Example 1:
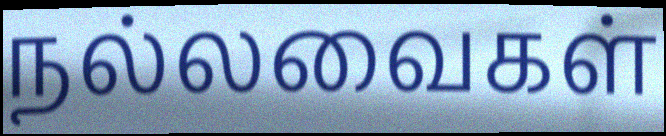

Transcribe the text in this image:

நல்லவைகள்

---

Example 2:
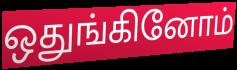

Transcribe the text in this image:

ஒதுங்கினோம்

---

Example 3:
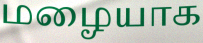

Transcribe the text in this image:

மழையாக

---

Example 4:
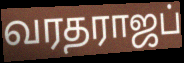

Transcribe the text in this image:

வரதராஜப்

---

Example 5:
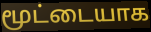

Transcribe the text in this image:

மூட்டையாக